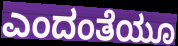
ಎಂದಂತೆಯೂ